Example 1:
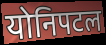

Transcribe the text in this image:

योनिपटल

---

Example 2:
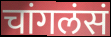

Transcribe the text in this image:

चांगलंसं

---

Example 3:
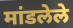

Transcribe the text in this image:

मांडलेले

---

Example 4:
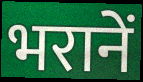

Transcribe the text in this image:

भरानें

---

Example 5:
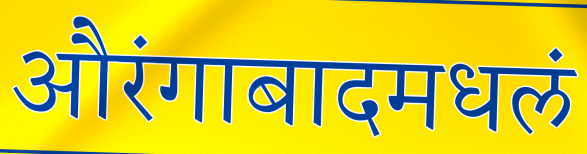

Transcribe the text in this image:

औरंगाबादमधलं